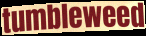
tumbleweed